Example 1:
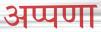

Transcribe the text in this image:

अप्पणा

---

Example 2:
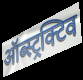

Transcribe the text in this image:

ऑब्स्ट्रक्टिव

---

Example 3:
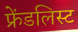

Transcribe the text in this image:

फ्रेंडलिस्ट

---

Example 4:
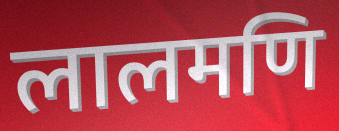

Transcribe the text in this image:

लालमणि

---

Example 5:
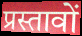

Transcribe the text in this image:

प्रस्‍तावों